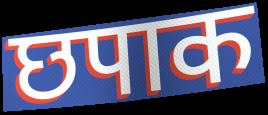
छपाक